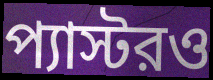
প্যাস্টরও